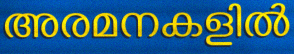
അരമനകളിൽ